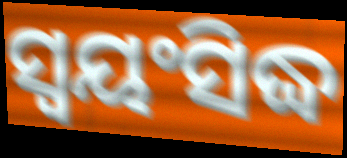
ସ୍ୱୟଂସିଦ୍ଧ